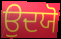
ਉਦਯੋ